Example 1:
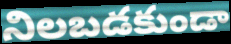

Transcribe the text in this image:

నిలబడకుండా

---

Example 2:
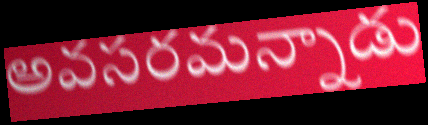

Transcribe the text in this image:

అవసరమన్నాడు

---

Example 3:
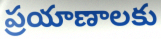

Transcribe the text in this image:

ప్రయాణాలకు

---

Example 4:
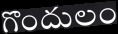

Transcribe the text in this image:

గొందులం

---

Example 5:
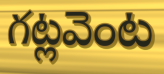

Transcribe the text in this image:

గట్లవెంట